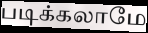
படிக்கலாமே